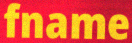
fname